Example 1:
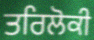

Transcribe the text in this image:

ਤਰਿਲੋਕੀ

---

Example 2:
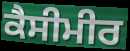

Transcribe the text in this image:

ਕੈਸੀਮੀਰ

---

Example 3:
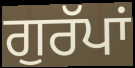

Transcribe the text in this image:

ਗੁਰੱਪਾਂ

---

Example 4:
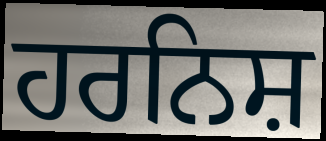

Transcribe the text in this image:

ਹਰਨਿਸ਼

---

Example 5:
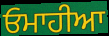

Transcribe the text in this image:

ਓਮਾਹੀਆ